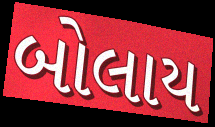
બોલાય